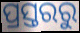
ପ୍ରସ୍ତରରୁ